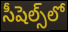
సీషెల్స్‌లో